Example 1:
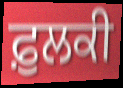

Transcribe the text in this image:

ਫ਼ੁਲਕੀ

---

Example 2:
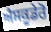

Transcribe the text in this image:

ਐਸਕੂਡੇਰੋ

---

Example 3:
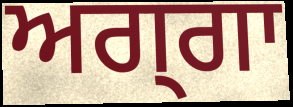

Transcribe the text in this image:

ਅਗ੍ਗਾ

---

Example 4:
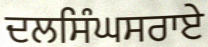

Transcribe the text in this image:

ਦਲਸਿੰਘਸਰਾਏ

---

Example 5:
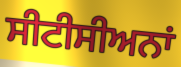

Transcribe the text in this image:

ਸੀਟੀਸੀਅਨਾਂ